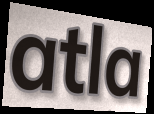
atla